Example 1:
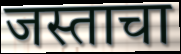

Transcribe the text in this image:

जस्ताचा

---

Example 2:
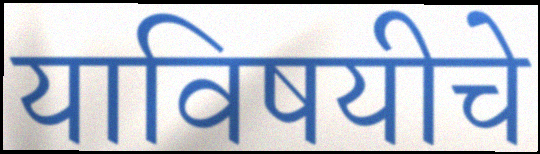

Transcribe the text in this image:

याविषयीचे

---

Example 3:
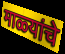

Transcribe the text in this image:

माळ्यांचे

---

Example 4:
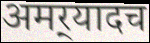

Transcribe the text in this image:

अमर्यादच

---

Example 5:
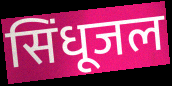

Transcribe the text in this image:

सिंधूजल